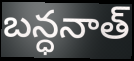
బన్ధనాత్